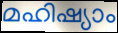
മഹിഷ്യാം